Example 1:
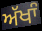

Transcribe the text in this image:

ਅੱਖਾੰ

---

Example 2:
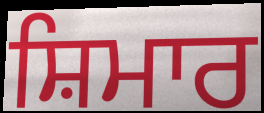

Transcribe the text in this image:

ਸ਼ਿਮਾਰ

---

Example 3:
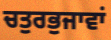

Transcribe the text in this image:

ਚਤੁਰਭੁਜਾਵਾਂ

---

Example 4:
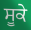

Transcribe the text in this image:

ਸੂਕੇ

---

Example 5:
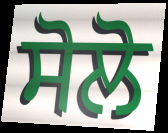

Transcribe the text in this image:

ਸੋਲੋ